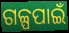
ଗଳ୍ପପାଇଁ